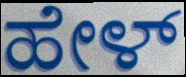
ಹೇಳ್